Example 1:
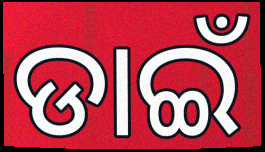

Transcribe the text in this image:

ଡାଇଁ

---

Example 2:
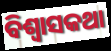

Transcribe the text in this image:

ବିଶ୍ଵାସକଥା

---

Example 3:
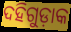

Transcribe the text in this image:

ଦହିଗୁଡ଼ାକ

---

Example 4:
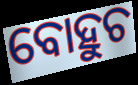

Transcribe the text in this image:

ବୋହୁଚ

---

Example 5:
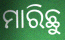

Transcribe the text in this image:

ମାରିଛୁ